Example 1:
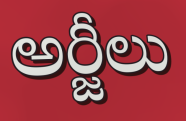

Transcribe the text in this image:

అర్జీలు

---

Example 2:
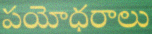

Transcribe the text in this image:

పయోధరాలు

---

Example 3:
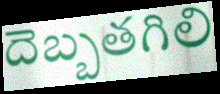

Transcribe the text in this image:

దెబ్బతగిలి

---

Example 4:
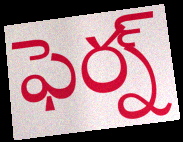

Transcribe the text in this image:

ఫెర్న్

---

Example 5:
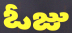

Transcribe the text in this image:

ఓజు